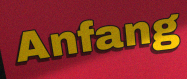
Anfang